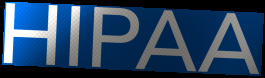
HIPAA